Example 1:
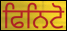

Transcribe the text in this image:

ਫਿਨਿਟੋ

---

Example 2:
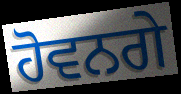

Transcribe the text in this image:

ਹੋਵਨਗੇ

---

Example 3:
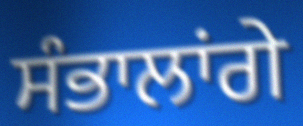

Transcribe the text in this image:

ਸੰਭਾਲਾਂਗੇ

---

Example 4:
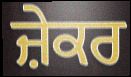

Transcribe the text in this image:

ਜ਼ੇਕਰ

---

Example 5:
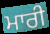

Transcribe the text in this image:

ਮਾਰੀ